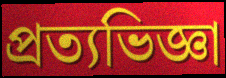
প্রত্যভিজ্ঞা